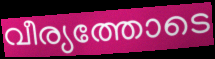
വീര്യത്തോടെ